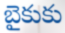
బైకుకు